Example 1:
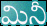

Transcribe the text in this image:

మినీ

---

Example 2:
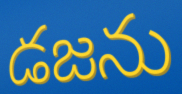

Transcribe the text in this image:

డజను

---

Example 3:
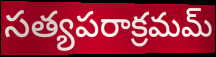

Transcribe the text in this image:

సత్యపరాక్రమమ్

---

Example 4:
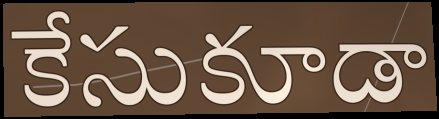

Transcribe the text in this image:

కేసుకూడా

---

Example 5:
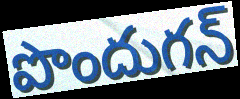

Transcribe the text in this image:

పొందుగన్